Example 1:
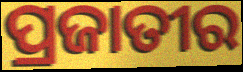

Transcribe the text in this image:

ପ୍ରଜାତୀର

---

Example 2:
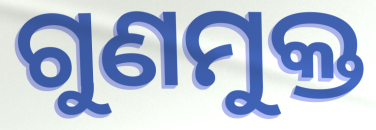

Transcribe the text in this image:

ଗୁଣମୁକ୍ତ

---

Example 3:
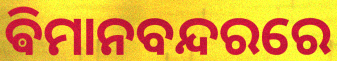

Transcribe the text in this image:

ଵିମାନବନ୍ଦରରେ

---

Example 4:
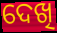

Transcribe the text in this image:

ଦେଖି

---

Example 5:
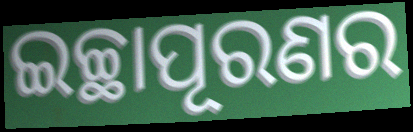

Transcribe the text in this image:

ଇଚ୍ଛାପୂରଣର